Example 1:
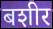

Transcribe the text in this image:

बशीर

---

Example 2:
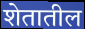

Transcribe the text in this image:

शेतातील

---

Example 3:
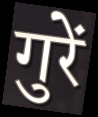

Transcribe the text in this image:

गुरें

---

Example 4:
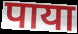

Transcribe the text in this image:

पाया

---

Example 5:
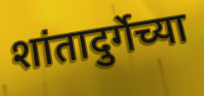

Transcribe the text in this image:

शांतादुर्गेच्या